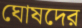
ঘোষদের